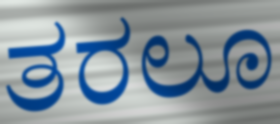
ತರಲೂ